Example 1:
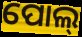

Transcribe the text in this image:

ପୋଲ୍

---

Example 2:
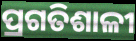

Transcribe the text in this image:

ପ୍ରଗତିଶାଳୀ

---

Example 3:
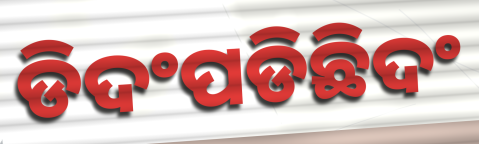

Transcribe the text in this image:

ଡିଦଂପଡିଛିଦଂ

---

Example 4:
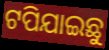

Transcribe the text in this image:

ଟପିଯାଇଛୁ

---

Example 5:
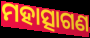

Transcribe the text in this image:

ମହାତ୍ସାଗଣ